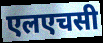
एलएचसी